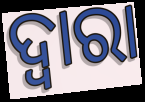
ଦ୍ବାରା